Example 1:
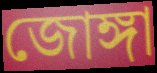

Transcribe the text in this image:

জোঙ্গা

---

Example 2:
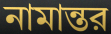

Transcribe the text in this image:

নামান্তর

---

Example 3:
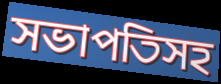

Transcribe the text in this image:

সভাপতিসহ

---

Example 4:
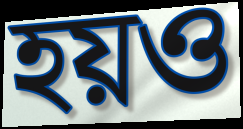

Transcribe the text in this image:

হয়ও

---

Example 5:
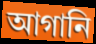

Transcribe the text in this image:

আগানি